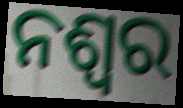
ନଶ୍ଵର